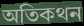
অতিকথন